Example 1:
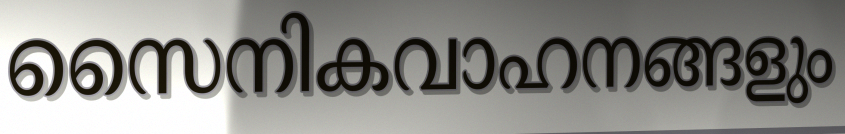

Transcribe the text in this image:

സൈനികവാഹനങ്ങളും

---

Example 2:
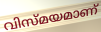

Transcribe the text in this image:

വിസ്മയമാണ്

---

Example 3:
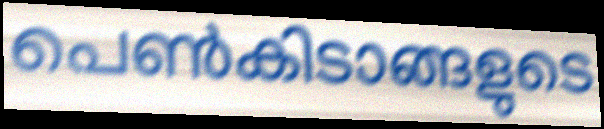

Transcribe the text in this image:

പെൺകിടാങ്ങളുടെ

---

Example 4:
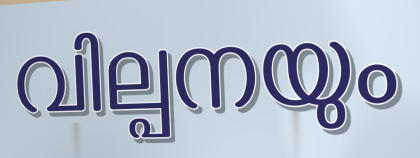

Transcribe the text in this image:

വില്പനയും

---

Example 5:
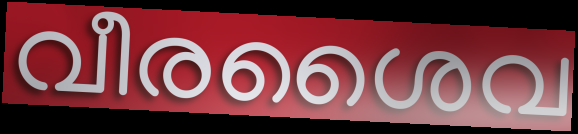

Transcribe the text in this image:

വീരശൈവ